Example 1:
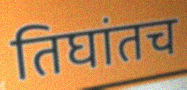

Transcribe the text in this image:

तिघांतच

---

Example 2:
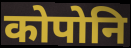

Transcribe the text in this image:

कोपोनि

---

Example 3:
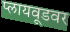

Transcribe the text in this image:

प्लायवूडवर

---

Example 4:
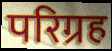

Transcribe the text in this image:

परिग्रह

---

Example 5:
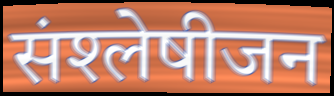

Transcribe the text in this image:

संश्लेषीजन